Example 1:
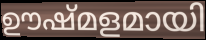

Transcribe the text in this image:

ഊഷ്മളമായി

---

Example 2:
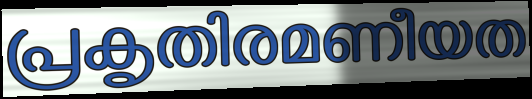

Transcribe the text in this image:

പ്രകൃതിരമണീയത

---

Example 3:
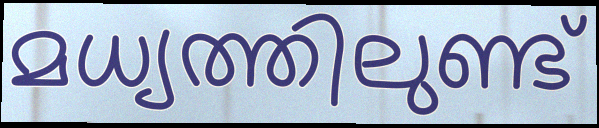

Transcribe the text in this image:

മധ്യത്തിലുണ്ട്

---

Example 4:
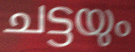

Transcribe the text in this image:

ചട്ടയും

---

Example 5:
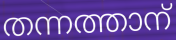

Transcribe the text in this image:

തന്നത്താന്